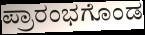
ಪ್ರಾರಂಭಗೊಂಡ